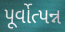
પૂર્વોત્પન્ન